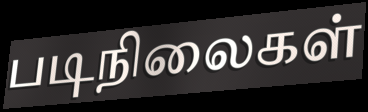
படிநிலைகள்